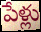
పేళ్లు